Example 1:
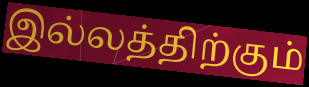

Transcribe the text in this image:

இல்லத்திற்கும்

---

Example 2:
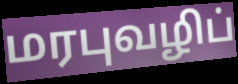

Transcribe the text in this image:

மரபுவழிப்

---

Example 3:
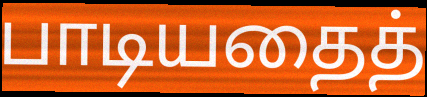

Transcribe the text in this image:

பாடியதைத்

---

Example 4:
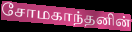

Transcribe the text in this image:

சோமகாந்தனின்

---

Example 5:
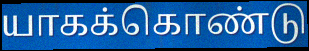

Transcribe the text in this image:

யாகக்கொண்டு